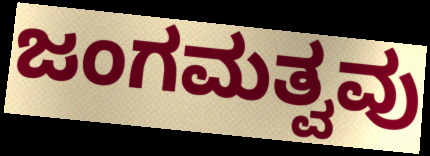
ಜಂಗಮತ್ವವು